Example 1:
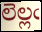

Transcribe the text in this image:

లెల్లఁ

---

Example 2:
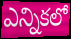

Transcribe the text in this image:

ఎన్నికలో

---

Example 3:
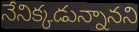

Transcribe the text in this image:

నేనిక్కడున్నానని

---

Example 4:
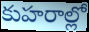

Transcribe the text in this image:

కుహరాల్లో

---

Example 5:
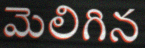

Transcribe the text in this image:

మెలిగిన